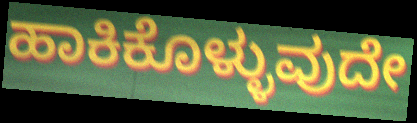
ಹಾಕಿಕೊಳ್ಳುವುದೇ